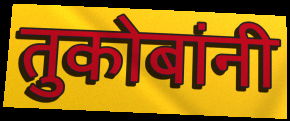
तुकोबांनी